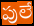
పులే